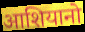
आशियानो